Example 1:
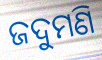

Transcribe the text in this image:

ଜଦୁମଣି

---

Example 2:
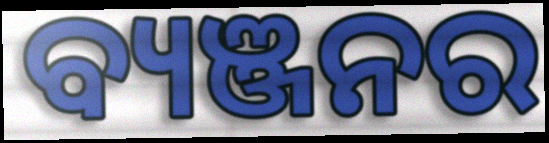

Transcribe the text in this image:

ବ୍ୟଞ୍ଜନର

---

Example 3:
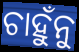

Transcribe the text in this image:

ଚାହୁଁନୁ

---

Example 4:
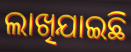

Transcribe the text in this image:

ଲାଖିଯାଇଛି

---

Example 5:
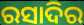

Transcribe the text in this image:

ରସାଦିର